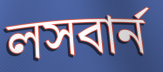
লসবার্ন